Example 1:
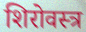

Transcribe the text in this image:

शिरोवस्त्र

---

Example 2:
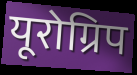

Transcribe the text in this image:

यूरोग्रिप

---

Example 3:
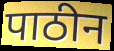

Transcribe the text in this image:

पाठीन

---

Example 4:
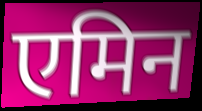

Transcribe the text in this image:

एमिन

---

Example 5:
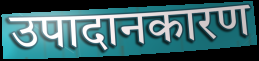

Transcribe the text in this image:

उपादानकारण